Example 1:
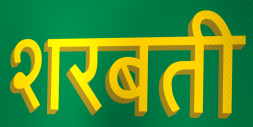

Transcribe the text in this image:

शरबती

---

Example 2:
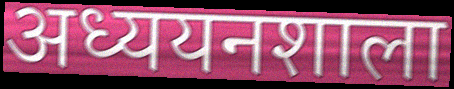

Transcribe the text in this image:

अध्ययनशाला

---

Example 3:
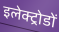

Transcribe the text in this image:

इलेक्ट्रोडों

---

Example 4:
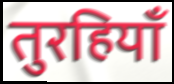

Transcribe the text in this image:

तुरहियाँ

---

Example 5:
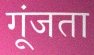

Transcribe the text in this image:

गूंजता